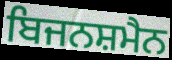
ਬਿਜਨਸ਼ਮੈਨ